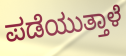
ಪಡೆಯುತ್ತಾಳೆ